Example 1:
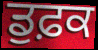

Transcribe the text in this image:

ਡੁਫ਼ਕ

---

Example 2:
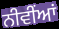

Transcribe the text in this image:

ਨੀਵੀਂਆਂ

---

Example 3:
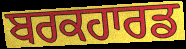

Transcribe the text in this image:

ਬਰਕਹਾਰਡ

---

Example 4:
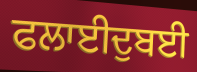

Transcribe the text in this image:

ਫਲਾਈਦੁਬਈ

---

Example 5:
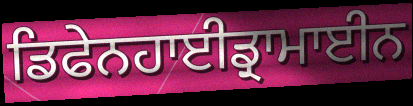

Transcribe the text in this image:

ਡਿਫੇਨਹਾਈਡ੍ਰਾਮਾਈਨ